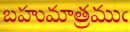
బహుమాత్రముఁ